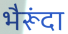
भैरूंदा